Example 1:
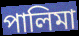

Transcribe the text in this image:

পালিমা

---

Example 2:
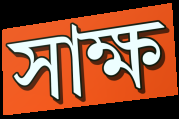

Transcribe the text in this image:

সাক্ষ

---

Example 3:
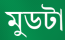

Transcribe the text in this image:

মুডটা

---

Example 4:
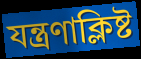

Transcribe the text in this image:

যন্ত্রণাক্লিষ্ট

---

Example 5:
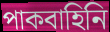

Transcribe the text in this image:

পাকবাহিনি